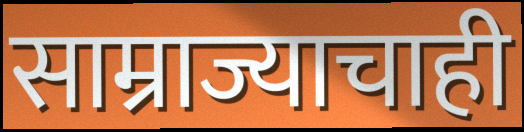
साम्राज्याचाही